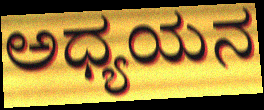
ಅಧ್ಯಯನ